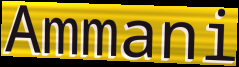
Ammani